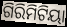
ଗିରିମିଟିୟା